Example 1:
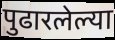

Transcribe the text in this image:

पुढारलेल्या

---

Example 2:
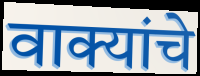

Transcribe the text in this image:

वाक्यांचे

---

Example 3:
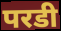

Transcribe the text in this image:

परडी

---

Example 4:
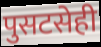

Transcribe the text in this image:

पुसटसेही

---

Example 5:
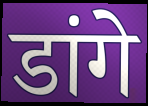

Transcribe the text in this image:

डांगे